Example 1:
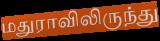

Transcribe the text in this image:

மதுராவிலிருந்து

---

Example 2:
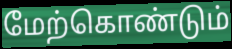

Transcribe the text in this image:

மேற்கொண்டும்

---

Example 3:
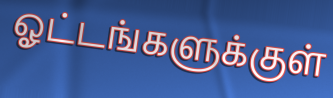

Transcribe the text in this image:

ஓட்டங்களுக்குள்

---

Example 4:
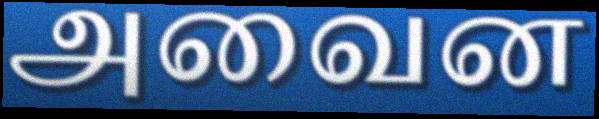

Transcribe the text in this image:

அவைன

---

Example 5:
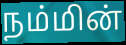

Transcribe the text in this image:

நம்மின்